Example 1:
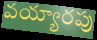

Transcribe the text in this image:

వయ్యారపు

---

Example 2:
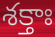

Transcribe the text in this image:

శక్తాః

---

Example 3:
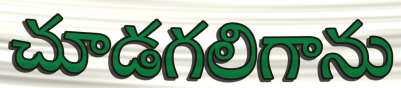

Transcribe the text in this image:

చూడగలిగాను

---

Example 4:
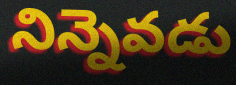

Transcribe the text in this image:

నిన్నెవడు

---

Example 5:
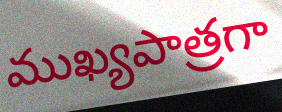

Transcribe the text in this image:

ముఖ్యపాత్రగా